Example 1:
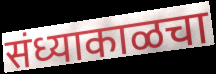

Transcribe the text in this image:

संध्याकाळचा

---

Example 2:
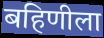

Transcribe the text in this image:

बहिणीला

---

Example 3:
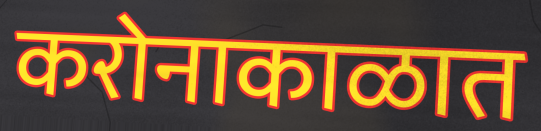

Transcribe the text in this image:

करोनाकाळात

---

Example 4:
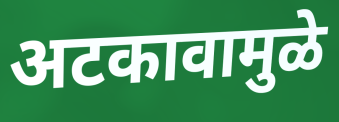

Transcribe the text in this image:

अटकावामुळे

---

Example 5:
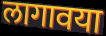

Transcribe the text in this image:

लागावया